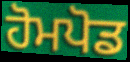
ਹੋਮਪੋਡ